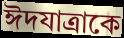
ঈদযাত্রাকে